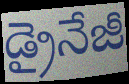
డ్రైనేజీ